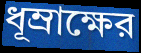
ধূম্রাক্ষের